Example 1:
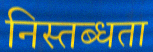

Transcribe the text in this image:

निस्तब्धता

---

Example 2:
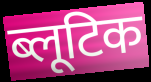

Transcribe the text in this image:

ब्लूटिक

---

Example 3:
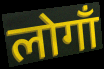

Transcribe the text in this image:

लोगाँ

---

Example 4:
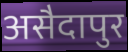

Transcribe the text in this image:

असैदापुर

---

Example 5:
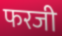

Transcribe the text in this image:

फरजी